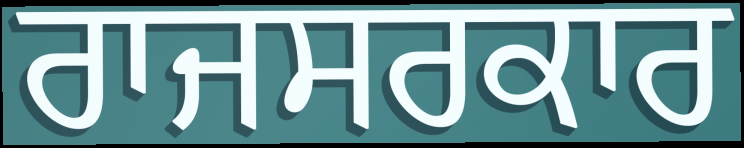
ਰਾਜਸਰਕਾਰ